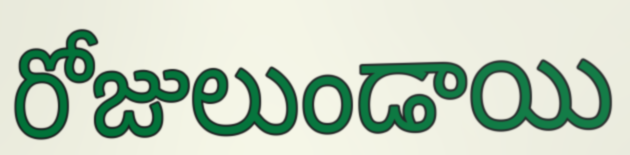
రోజులుండాయి